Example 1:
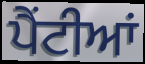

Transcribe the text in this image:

ਪੈਂਟੀਆਂ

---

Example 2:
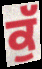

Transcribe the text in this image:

ਕੁੱ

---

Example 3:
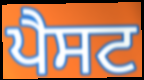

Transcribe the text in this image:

ਪੈਸਟ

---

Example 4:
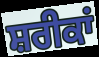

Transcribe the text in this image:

ਸ਼ਰੀਕਾਂ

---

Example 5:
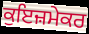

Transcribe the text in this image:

ਕੁਇਜ਼ਮੇਕਰ